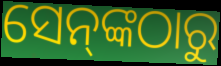
ସେନ୍‌ଙ୍କଠାରୁ